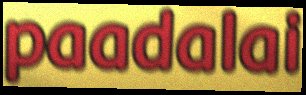
paadalai